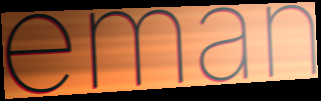
eman